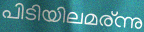
പിടിയിലമര്ന്നു